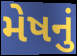
મેષનું